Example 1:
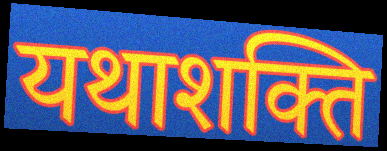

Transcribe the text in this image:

यथाशक्ति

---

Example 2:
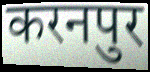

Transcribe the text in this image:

करनपुर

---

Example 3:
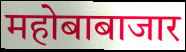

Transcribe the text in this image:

महोबाबाजार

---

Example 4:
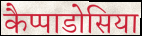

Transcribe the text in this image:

कैप्पाडोसिया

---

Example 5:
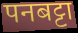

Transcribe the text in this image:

पनबट्टा